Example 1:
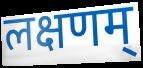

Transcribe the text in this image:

लक्षणम्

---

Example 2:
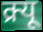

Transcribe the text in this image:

क्र्यू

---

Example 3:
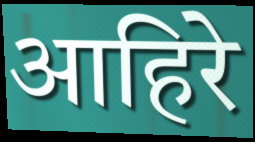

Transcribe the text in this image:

आहिरे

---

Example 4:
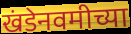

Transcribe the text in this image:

खंडेनवमीच्या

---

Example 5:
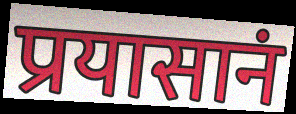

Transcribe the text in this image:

प्रयासानं